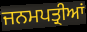
ਜਨਮਪਤ੍ਰੀਆਂ